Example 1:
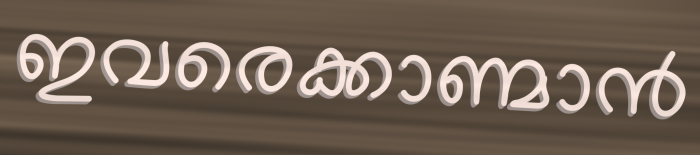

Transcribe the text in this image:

ഇവരെക്കാണ്മാൻ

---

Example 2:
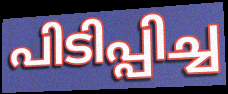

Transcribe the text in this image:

പിടിപ്പിച്ച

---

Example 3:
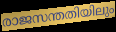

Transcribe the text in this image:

രാജസന്തതിയിലും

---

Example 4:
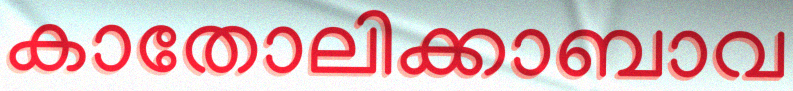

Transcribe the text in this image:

കാതോലിക്കാബാവ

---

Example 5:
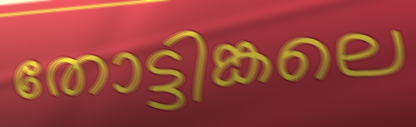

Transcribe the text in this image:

തോട്ടിങ്കലെ